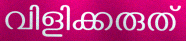
വിളിക്കരുത്